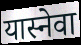
यास्नेवा